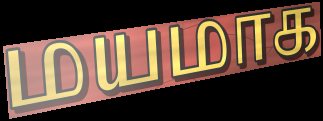
மயமாக